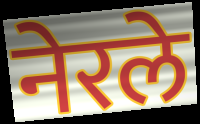
नेरले